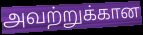
அவற்றுக்கான